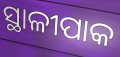
ସ୍ଥାଳୀପାକ